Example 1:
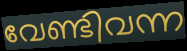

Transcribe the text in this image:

വേണ്ടിവന്ന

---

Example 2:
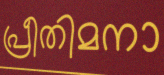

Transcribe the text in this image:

പ്രീതിമനാ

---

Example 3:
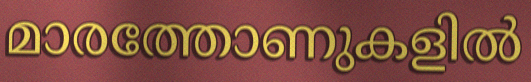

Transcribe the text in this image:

മാരത്തോണുകളിൽ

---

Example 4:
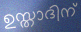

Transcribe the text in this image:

ഉസ്താദിന്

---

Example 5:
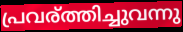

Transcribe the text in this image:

പ്രവര്ത്തിച്ചുവന്നു